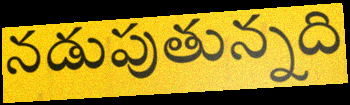
నడుపుతున్నది